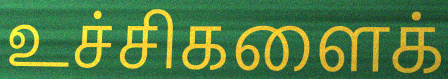
உச்சிகளைக்